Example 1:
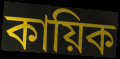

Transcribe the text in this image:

কায়িক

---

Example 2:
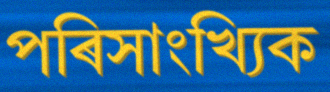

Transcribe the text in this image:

পৰিসাংখ্যিক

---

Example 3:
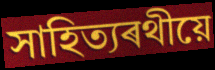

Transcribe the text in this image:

সাহিত্যৰথীয়ে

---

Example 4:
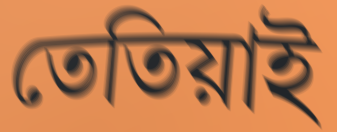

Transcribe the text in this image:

তেতিয়াই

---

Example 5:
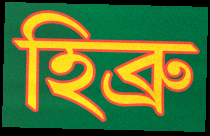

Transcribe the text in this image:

হিব্ৰু